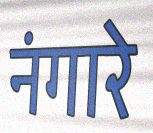
नंगारे